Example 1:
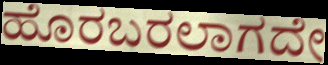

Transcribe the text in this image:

ಹೊರಬರಲಾಗದೇ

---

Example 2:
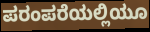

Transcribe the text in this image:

ಪರಂಪರೆಯಲ್ಲಿಯೂ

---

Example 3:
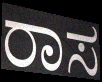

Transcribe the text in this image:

ರಾಸ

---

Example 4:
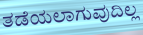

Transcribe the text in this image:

ತಡೆಯಲಾಗುವುದಿಲ್ಲ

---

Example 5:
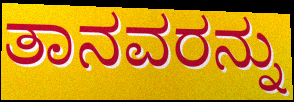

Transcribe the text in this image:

ತಾನವರನ್ನು